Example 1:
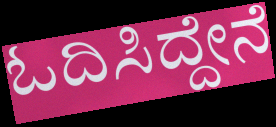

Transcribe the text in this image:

ಓದಿಸಿದ್ದೇನೆ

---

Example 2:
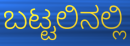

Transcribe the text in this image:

ಬಟ್ಟಲಿನಲ್ಲಿ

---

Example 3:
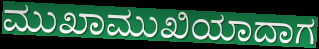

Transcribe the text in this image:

ಮುಖಾಮುಖಿಯಾದಾಗ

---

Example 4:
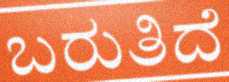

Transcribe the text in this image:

ಬರುತಿದೆ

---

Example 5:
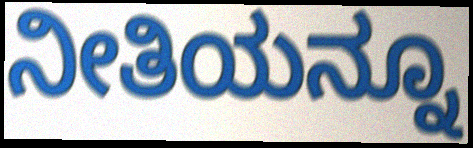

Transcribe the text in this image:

ನೀತಿಯನ್ನೂ